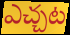
ఎచ్చట